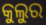
କୁଲୁର